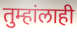
तुम्हांलाही